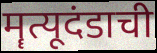
मॄत्यूदंडाची